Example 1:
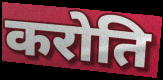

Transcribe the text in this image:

करोति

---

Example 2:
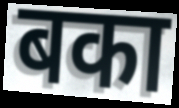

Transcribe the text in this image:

बका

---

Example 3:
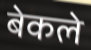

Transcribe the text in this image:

बेकले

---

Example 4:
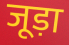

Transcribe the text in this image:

जूड़ा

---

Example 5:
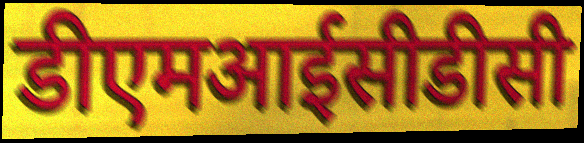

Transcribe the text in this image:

डीएमआईसीडीसी